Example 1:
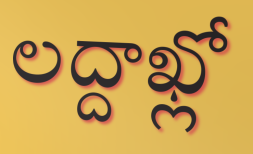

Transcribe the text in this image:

లద్దాఖ్లో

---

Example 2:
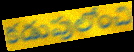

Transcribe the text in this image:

కడుపులోంచి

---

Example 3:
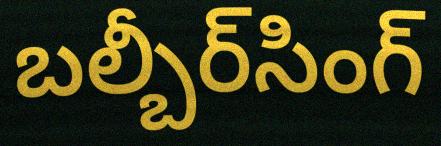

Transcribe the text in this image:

బల్బీర్‌సింగ్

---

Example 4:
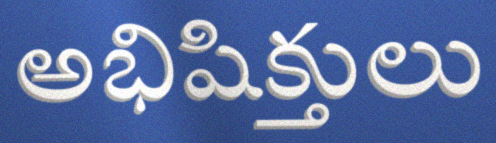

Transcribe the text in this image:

అభిషిక్తులు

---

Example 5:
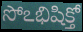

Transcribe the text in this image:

సోఽభిషిక్తో